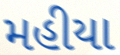
મહીયા